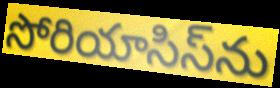
సోరియాసిస్‌ను